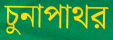
চুনাপাথর